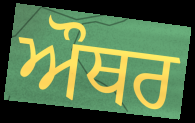
ਔਥਰ